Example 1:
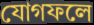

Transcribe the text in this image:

যোগফলে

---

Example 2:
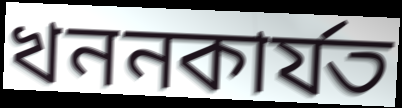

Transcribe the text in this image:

খননকাৰ্যত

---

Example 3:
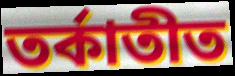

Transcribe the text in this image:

তৰ্কাতীত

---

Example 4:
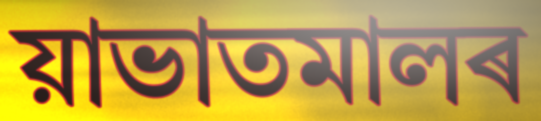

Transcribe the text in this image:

য়াভাতমালৰ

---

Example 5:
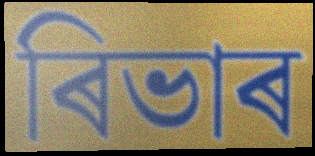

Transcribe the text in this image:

ৰিভাৰ